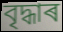
বৃদ্ধাৰ